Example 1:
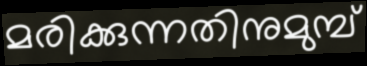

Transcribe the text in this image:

മരിക്കുന്നതിനുമുമ്പ്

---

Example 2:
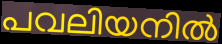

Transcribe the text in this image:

പവലിയനിൽ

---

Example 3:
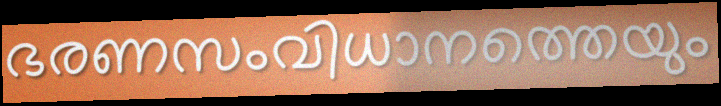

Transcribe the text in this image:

ഭരണസംവിധാനത്തെയും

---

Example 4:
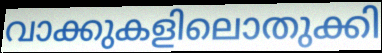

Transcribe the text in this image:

വാക്കുകളിലൊതുക്കി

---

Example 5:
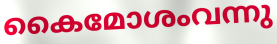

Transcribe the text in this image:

കൈമോശംവന്നു